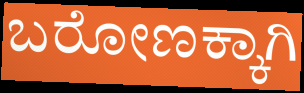
ಬರೋಣಕ್ಕಾಗಿ